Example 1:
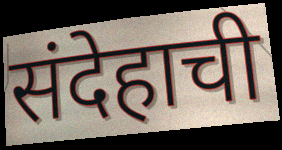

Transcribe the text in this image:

संदेहाची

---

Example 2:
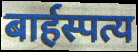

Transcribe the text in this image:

बार्हस्पत्य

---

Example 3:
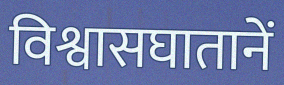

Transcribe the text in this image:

विश्वासघातानें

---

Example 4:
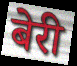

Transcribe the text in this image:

बेरी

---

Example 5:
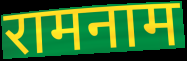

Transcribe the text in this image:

रामनाम